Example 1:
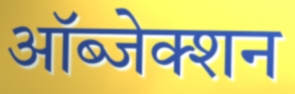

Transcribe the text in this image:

ऑब्‍जेक्‍शन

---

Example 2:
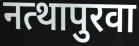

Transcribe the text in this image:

नत्थापुरवा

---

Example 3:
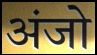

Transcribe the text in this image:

अंजो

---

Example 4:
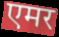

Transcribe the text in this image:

एमर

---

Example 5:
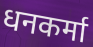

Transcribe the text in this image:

धनकर्मा